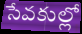
సేవకుల్లో